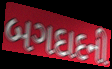
બગદાદની